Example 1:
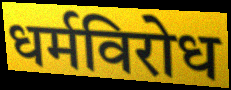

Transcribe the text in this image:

धर्मविरोध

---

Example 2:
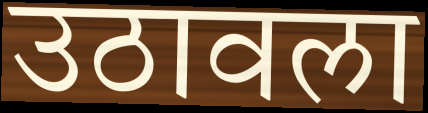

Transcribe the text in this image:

उठावला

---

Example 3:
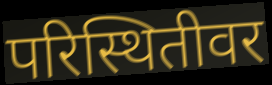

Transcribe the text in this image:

परिस्थितीवर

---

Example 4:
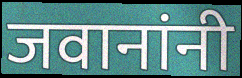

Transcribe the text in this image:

जवानांनी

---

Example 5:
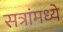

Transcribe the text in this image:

सत्रांमध्ये